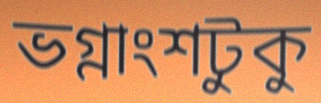
ভগ্নাংশটুকু